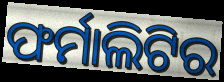
ଫର୍ମାଲିଟିର